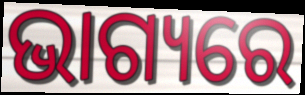
ଭାଗ୍ୟରେ